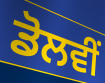
ਡੋਲਵੀਂ